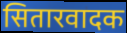
सितारवादक